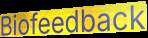
Biofeedback